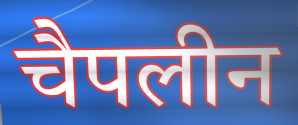
चैपलीन